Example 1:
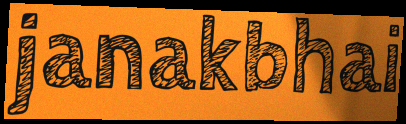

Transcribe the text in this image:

janakbhai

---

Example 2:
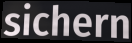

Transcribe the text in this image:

sichern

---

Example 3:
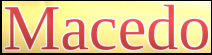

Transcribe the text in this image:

Macedo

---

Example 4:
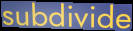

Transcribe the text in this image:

subdivide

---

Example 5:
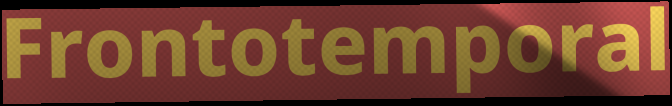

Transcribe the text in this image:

Frontotemporal